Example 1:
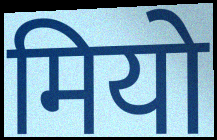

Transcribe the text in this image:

मियो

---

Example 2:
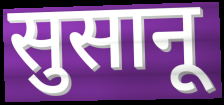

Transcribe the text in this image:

सुसानू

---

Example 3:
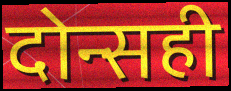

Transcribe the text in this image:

दोन्सही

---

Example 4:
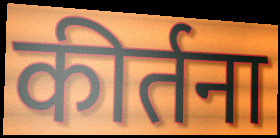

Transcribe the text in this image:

कीर्तना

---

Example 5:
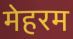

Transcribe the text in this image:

मेहरम